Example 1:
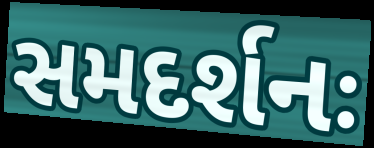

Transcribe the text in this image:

સમદર્શનઃ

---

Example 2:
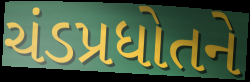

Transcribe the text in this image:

ચંડપ્રધોતને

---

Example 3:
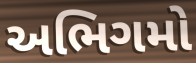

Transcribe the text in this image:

અભિગમો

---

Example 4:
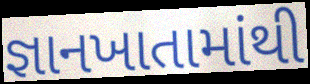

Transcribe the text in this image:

જ્ઞાનખાતામાંથી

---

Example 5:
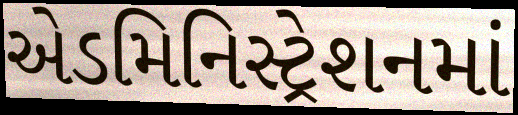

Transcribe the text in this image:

એડમિનિસ્ટ્રેશનમાં